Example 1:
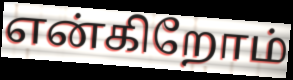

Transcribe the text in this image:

என்கிறோம்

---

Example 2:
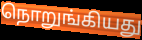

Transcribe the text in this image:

நொறுங்கியது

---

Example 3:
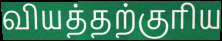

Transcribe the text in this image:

வியத்தற்குரிய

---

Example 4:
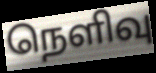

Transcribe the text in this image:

நெளிவு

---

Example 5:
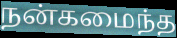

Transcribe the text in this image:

நன்கமைந்த